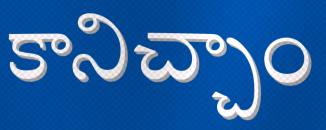
కానిచ్చాం